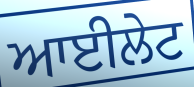
ਆਈਲੇਟ